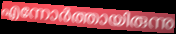
എന്നോർത്തായിരുന്നു